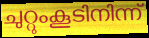
ചുറ്റുംകൂടിനിന്ന്